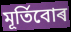
মূৰ্তিবোৰ